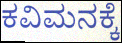
ಕವಿಮನಕ್ಕೆ